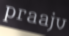
praaju